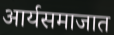
आर्यसमाजात